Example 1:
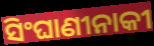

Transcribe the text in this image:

ସିଂଘାଣୀନାକୀ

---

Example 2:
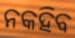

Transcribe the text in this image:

ନକହିବ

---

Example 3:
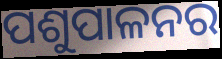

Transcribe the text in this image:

ପଶୁପାଳନର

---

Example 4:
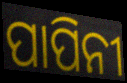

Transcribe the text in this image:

ପାପିନୀ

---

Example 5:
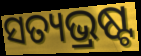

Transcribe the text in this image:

ସତ୍ୟଭ୍ରଷ୍ଟ